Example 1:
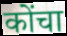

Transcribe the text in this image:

कोंचा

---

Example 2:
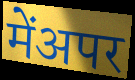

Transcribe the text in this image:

मेंअपर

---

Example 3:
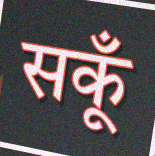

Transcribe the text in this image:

सकूँ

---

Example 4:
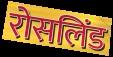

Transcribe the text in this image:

रोसलिंड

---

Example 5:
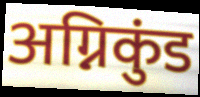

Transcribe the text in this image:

अग्निकुंड